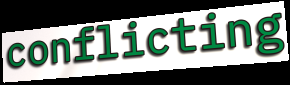
conflicting